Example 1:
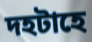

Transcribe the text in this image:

দহটাহে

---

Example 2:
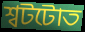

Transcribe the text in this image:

শ্বটটোত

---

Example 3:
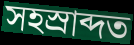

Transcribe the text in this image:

সহস্ৰাব্দত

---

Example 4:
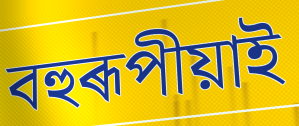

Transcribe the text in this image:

বহুৰূপীয়াই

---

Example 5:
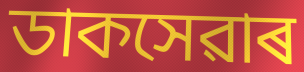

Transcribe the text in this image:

ডাকসেৱাৰ